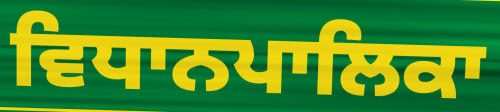
ਵਿਧਾਨਪਾਲਿਕਾ